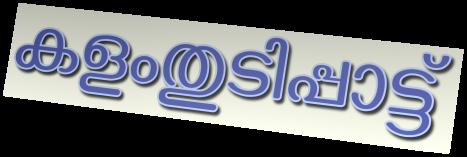
കളംതുടിപ്പാട്ട്